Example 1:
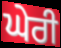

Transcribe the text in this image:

ਘੇਰੀ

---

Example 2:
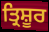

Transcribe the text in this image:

ਤ੍ਰਿਸ਼ੂਰ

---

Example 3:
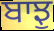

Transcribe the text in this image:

ਬਾਝੁ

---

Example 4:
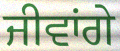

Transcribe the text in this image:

ਜੀਵਾਂਗੇ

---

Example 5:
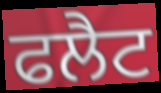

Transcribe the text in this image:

ਫਲੈਟ